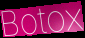
Botox